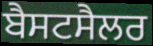
ਬੈਸਟਸੈਲਰ